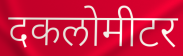
दकलोमीटर